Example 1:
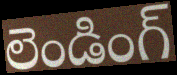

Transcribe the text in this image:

లెండింగ్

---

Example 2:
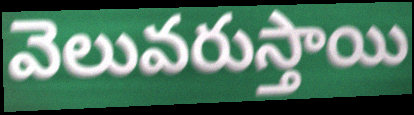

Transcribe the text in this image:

వెలువరుస్తాయి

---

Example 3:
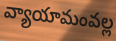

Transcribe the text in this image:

వ్యాయామంవల్ల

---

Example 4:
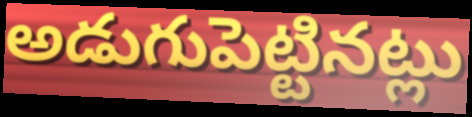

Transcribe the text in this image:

అడుగుపెట్టినట్లు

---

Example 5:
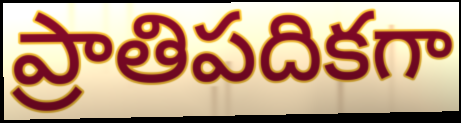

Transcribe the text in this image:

ప్రాతిపదికగా